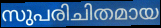
സുപരിചിതമായ